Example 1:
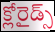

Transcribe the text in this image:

క్లోరైడ్స్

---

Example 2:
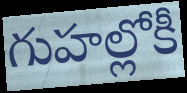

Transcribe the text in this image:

గుహల్లోకీ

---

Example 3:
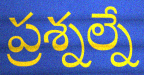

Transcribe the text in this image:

ప్రశ్నల్నే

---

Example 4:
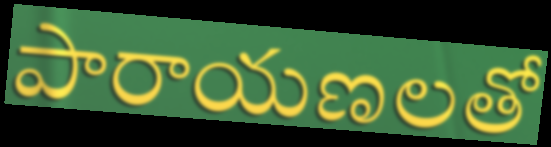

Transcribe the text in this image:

పారాయణలతో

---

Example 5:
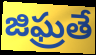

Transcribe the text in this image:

జిఘ్రతే